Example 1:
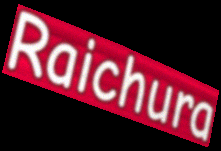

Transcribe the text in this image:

Raichura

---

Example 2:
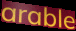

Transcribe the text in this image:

arable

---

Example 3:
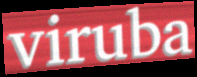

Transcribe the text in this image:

viruba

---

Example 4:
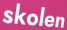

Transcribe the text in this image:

skolen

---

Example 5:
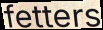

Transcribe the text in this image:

fetters